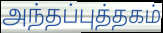
அந்தப்புத்தகம்